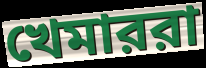
খেমাররা